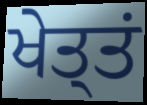
ਖੇਤ੍ਤਂ